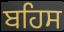
ਬਹਿਸ